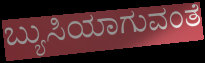
ಬ್ಯುಸಿಯಾಗುವಂತೆ